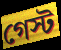
গেস্ট